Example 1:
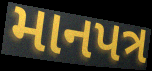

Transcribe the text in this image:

માનપત્ર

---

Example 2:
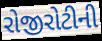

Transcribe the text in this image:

રોજીરોટીની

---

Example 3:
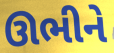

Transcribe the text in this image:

ઊભીને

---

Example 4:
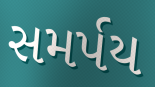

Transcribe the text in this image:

સમર્પય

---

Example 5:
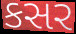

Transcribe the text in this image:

કસર